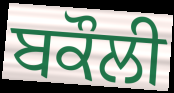
ਬਕੌਲੀ